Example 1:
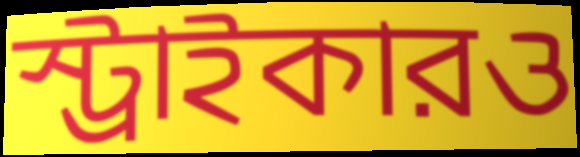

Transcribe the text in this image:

স্ট্রাইকারও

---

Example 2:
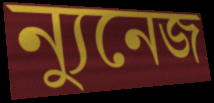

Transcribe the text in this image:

ন্যুনেজ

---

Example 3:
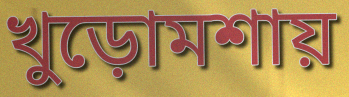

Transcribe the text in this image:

খুড়োমশায়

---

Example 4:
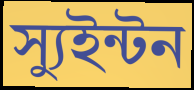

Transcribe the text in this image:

স্যুইন্টন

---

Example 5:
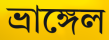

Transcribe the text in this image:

ভ্রাঙ্গেল